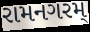
રામનગરમ્